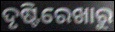
ଦୃଷ୍ଟିରେଖାରୁ